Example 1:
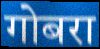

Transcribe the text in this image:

गोबरा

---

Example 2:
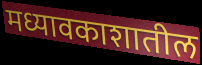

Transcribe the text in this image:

मध्यावकाशातील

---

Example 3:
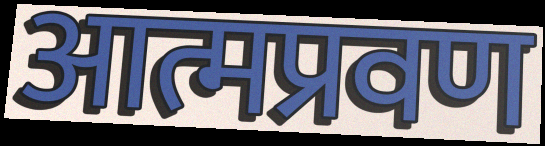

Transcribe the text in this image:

आत्मप्रवण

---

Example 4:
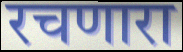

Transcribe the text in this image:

रचणारा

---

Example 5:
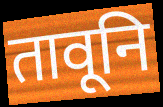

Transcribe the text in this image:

तावूनि